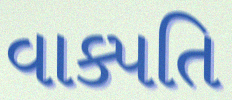
વાક્પતિ